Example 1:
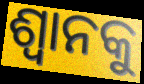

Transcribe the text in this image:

ଶ୍ଵାନକୁ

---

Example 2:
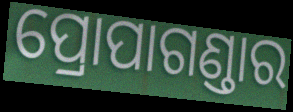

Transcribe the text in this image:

ପ୍ରୋପାଗଣ୍ଡାର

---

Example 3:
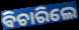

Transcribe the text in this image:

ବିଚାରିଲେ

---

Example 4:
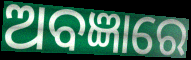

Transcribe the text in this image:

ଅବଜ୍ଞାରେ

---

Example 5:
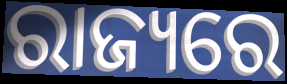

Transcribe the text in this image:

ରାଜ୍ଯରେ